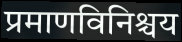
प्रमाणविनिश्चय